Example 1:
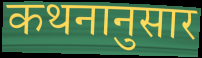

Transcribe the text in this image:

कथनानुसार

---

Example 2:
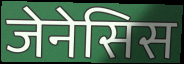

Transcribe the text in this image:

जेनेसिस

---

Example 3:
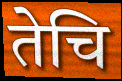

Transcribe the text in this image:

तेचि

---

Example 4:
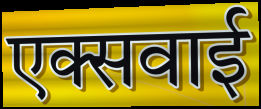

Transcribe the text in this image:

एक्सवाई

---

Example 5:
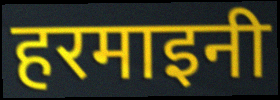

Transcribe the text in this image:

हरमाइनी